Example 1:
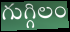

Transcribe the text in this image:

గుగ్గిలం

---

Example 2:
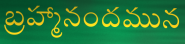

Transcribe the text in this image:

బ్రహ్మానందమున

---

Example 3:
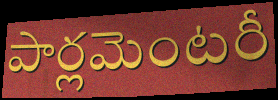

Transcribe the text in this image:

పార్లమెంటరీ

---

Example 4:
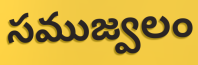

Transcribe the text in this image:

సముజ్వలం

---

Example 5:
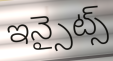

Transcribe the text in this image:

ఇన్సైట్స్